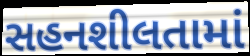
સહનશીલતામાં